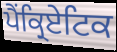
ਪੈਂਕ੍ਰਿਏਟਿਕ